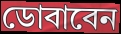
ডোবাবেন